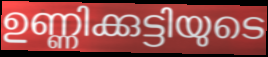
ഉണ്ണിക്കുട്ടിയുടെ